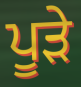
ਪੂੜੇ